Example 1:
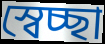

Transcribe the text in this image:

স্বেচ্ছা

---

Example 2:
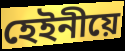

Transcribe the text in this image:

হেইনীয়ে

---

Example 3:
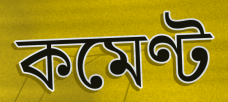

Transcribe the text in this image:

কমেণ্ট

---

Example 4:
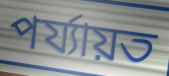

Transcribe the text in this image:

পৰ্য্যায়ত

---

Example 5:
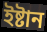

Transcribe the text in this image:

ইষ্টান